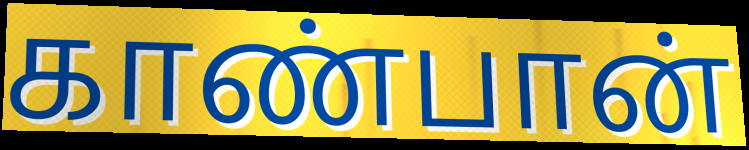
காண்பான்